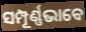
ସମ୍ପୂର୍ଣ୍ଣଭାବେ